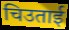
चिउताई